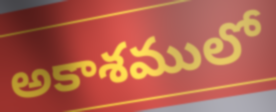
అకాశములో